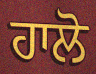
ਹਾਲੋ